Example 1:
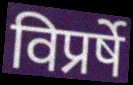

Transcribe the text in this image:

विप्रर्षे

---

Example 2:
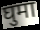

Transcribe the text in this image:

घुमा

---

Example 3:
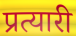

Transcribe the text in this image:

प्रत्यारी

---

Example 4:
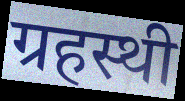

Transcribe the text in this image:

ग्रहस्थी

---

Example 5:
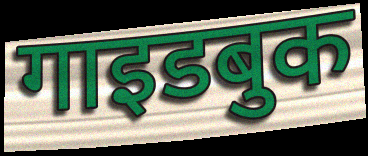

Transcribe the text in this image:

गाइडबुक